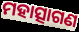
ମହାତ୍ସାଗଣ